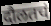
दौलतचं